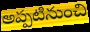
అప్పటినుంచి